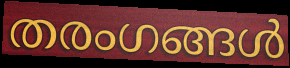
തരംഗങ്ങൾ